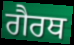
ਗੈਰਥ